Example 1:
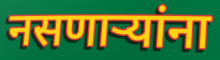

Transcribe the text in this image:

नसणाऱ्यांना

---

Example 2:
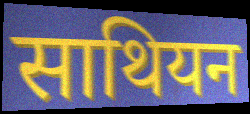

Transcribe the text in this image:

साथियन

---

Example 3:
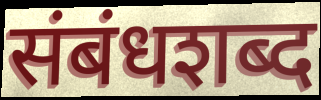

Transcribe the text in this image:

संबंधशब्द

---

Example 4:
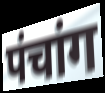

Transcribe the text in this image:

पंचांग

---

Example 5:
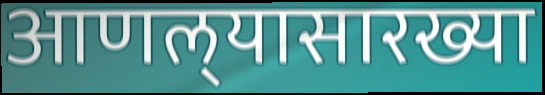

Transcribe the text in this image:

आणल्यासारख्या